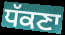
ਧੱਕਣਾ